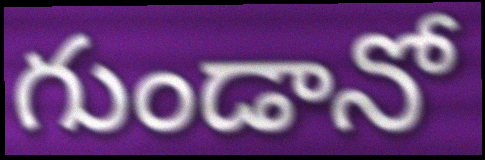
గుండానో